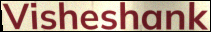
Visheshank